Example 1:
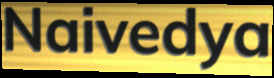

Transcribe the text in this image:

Naivedya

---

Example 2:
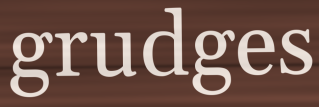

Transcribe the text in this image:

grudges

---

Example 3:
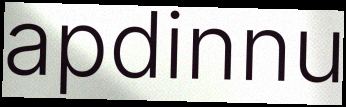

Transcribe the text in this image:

apdinnu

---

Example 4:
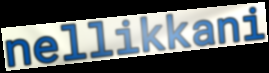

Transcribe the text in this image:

nellikkani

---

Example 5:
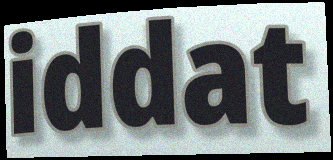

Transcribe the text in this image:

iddat